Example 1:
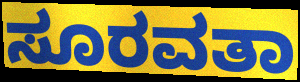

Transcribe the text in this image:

ಸೂರವತಾ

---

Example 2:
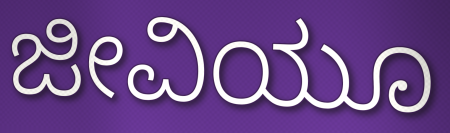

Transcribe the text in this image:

ಜೀವಿಯೂ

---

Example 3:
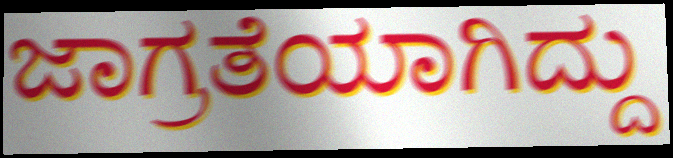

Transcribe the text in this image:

ಜಾಗ್ರತೆಯಾಗಿದ್ದು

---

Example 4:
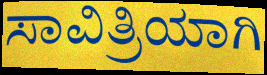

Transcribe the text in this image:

ಸಾವಿತ್ರಿಯಾಗಿ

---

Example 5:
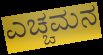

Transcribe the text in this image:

ಎಚ್ಚಮನ